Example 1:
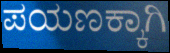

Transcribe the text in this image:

ಪಯಣಕ್ಕಾಗಿ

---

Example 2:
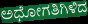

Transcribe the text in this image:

ಅಧೋಗತಿಗಿಳಿದ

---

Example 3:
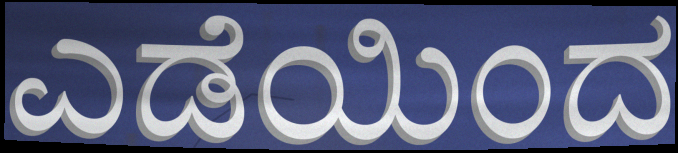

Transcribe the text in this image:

ಎಡೆಯಿಂದ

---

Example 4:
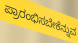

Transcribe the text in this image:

ಪ್ರಾರಂಭಿಸಬೇಕೆನ್ನುವ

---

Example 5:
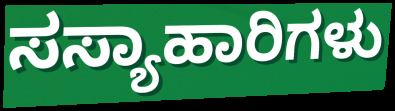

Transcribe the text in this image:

ಸಸ್ಯಾಹಾರಿಗಳು